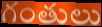
గంతులు